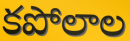
కపోలాల